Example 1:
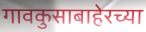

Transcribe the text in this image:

गावकुसाबाहेरच्या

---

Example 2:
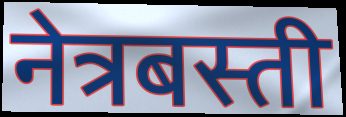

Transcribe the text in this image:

नेत्रबस्ती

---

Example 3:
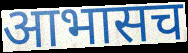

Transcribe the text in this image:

आभासच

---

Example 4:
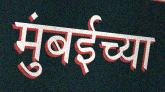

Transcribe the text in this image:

मुंबईच्या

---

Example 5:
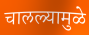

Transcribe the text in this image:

चालल्यामुळे